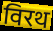
विरथ